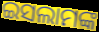
ଇସଲାମଙ୍କ